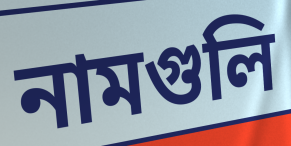
নামগুলি